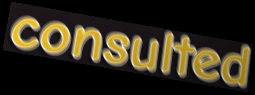
consulted